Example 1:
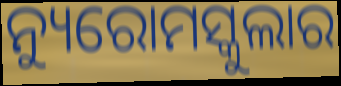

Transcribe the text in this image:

ନ୍ୟୁରୋମସ୍କୁଲାର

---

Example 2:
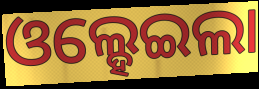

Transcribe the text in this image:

ଓଲ୍ହେଇଲା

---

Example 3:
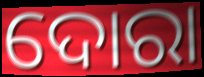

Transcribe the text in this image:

ଦୋରା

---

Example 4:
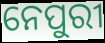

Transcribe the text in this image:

ନେପୁରୀ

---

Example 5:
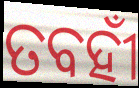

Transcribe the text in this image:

ତବହୀଁ